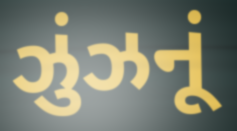
ઝુંઝનૂં